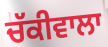
ਚੱਕੀਵਾਲਾ